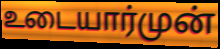
உடையார்முன்